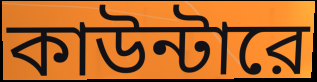
কাউন্টারে